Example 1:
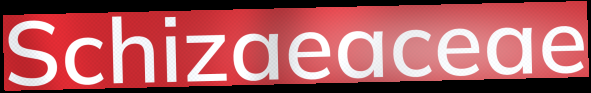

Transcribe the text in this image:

Schizaeaceae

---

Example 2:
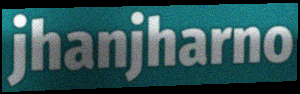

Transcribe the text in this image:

jhanjharno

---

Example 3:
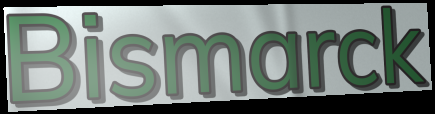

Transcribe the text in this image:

Bismarck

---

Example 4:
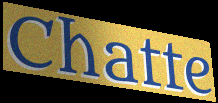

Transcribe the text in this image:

Chatte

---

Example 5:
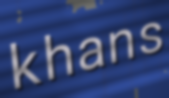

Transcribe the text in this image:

khans